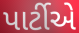
પાર્ટીએ